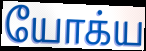
யோக்ய